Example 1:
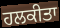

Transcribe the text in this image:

ਹਲਕੀਤਾ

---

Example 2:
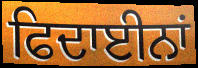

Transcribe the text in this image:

ਫਿਦਾਈਨਾਂ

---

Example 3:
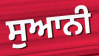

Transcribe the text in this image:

ਸੁਆਨੀ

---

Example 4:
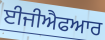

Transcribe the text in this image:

ਈਜੀਐਫਆਰ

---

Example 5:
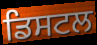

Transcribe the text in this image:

ਡਿਸਟਲ